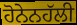
ਹੋਨੇਨਹੱਲੀ